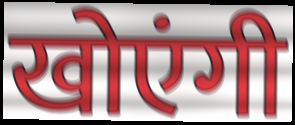
खोएंगी